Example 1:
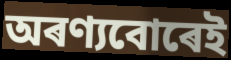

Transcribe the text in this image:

অৰণ্যবোৰেই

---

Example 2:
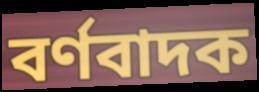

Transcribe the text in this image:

বৰ্ণবাদক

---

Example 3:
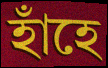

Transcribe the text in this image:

হাঁহে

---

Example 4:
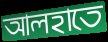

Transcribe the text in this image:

আলহাতে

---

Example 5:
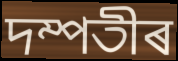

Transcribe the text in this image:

দম্পতীৰ